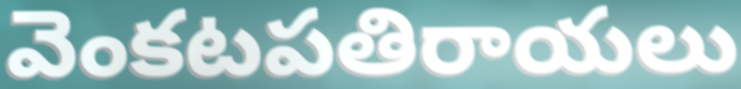
వెంకటపతిరాయలు